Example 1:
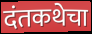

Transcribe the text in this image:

दंतकथेचा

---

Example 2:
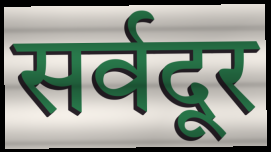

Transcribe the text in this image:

सर्वदूर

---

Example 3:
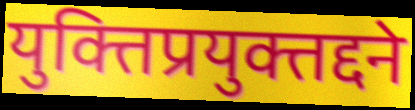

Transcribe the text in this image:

युक्तिप्रयुक्तद्दने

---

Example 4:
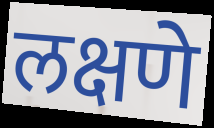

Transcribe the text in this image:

लक्षणे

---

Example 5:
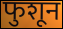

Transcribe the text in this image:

फुशून